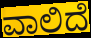
ವಾಲಿದೆ